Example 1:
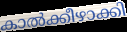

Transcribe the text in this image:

കാൽക്കീഴാക്കി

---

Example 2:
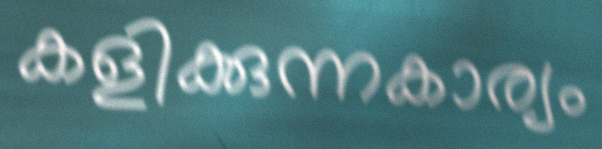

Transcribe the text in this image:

കളിക്കുന്നകാര്യം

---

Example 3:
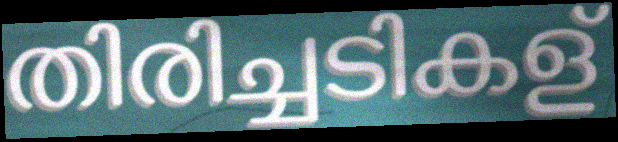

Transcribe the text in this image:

തിരിച്ചടികള്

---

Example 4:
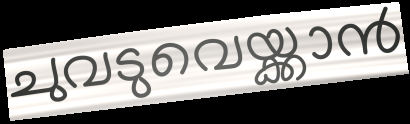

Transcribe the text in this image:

ചുവടുവെയ്ക്കാൻ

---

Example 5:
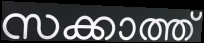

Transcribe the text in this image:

സക്കാത്ത്